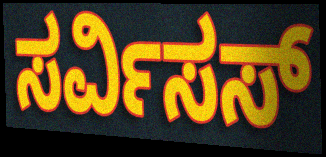
ಸರ್ವಿಸಸ್